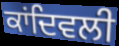
ਕਾਂਦਿਵਲੀ